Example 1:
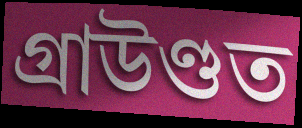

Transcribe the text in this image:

গ্ৰাউণ্ডত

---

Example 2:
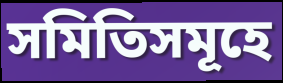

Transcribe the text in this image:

সমিতিসমূহে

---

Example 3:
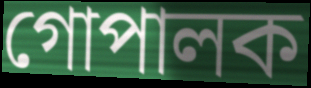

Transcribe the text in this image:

গোপালক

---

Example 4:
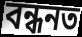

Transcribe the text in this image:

বন্ধনত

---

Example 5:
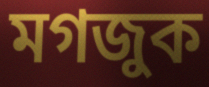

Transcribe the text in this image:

মগজুক